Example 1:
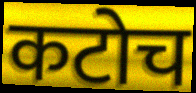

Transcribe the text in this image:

कटोच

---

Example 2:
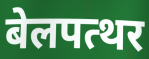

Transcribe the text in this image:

बेलपत्थर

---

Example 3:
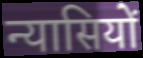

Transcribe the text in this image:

न्यासियों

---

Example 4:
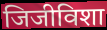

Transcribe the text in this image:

जिजीविशा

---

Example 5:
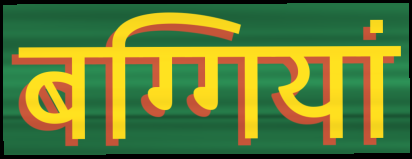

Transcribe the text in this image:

बग्गियां